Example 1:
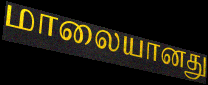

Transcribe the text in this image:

மாலையானது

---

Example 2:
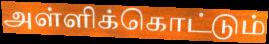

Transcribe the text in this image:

அள்ளிக்கொட்டும்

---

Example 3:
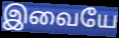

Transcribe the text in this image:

இவையே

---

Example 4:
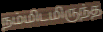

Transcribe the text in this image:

நம்மிடமிருந்த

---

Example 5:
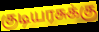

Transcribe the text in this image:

குடியரசுக்கு